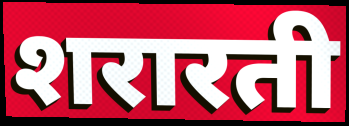
शरारती